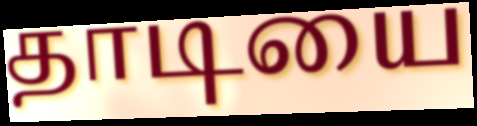
தாடியை